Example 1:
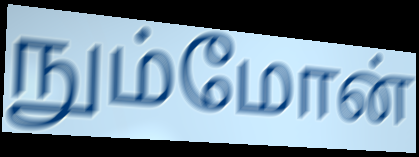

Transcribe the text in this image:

நும்மோன்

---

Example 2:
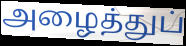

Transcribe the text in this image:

அழைத்துப்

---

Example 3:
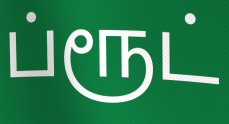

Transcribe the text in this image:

ப்ரூட்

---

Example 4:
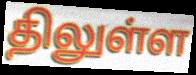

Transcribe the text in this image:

திலுள்ள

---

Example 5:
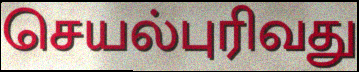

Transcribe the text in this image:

செயல்புரிவது